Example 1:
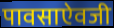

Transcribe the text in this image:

पावसाऐवजी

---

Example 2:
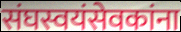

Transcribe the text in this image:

संघस्वयंसेवकांना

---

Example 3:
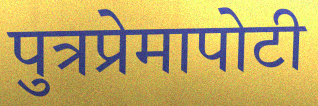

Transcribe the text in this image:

पुत्रप्रेमापोटी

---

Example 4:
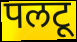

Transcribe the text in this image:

पलटू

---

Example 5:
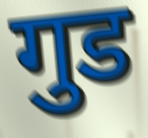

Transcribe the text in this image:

गुड